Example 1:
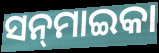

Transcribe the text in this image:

ସନ୍‌ମାଇକା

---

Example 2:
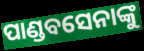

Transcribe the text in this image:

ପାଣ୍ଡବସେନାଙ୍କୁ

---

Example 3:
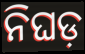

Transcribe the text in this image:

ନିଘଡ଼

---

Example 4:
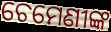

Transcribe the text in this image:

ଚେମେଣୀଙ୍କ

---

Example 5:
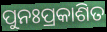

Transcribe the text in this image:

ପୁନଃପ୍ରକାଶିତ